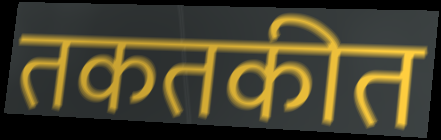
तकतकीत